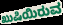
ಖುಷಿಯಿರುವ